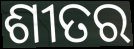
ଶୀତର